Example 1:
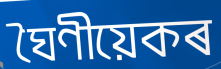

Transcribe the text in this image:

ঘৈণীয়েকৰ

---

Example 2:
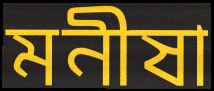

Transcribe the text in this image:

মনীষা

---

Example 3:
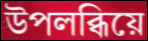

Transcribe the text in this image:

উপলব্ধিয়ে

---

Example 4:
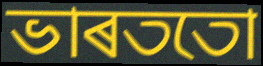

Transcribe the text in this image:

ভাৰততো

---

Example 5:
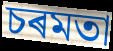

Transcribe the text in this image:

চৰমতা